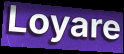
Loyare